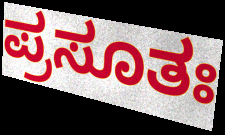
ಪ್ರಸೂತಃ